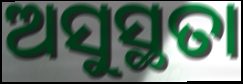
ଅସୁସ୍ଥତା